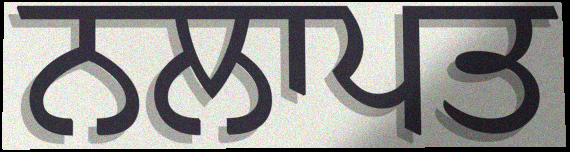
ਨਲਾਪਤ